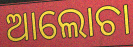
ଆଲୋଚା